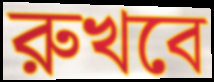
রুখবে